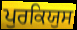
ਪੁਰਕਿਯੁਸ